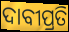
ଦାବୀପ୍ରତି